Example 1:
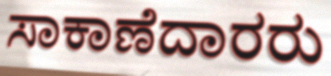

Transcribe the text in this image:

ಸಾಕಾಣೆದಾರರು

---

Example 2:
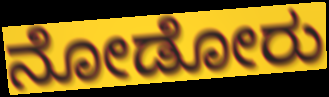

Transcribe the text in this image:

ನೋಡೋರು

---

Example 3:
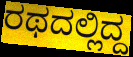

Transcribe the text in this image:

ರಥದಲ್ಲಿದ್ದ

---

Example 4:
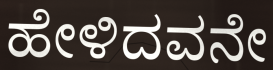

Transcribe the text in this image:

ಹೇಳಿದವನೇ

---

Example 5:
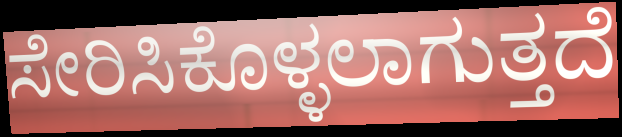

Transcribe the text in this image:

ಸೇರಿಸಿಕೊಳ್ಳಲಾಗುತ್ತದೆ